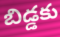
బిడ్డకు